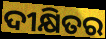
ଦୀକ୍ଷିତର